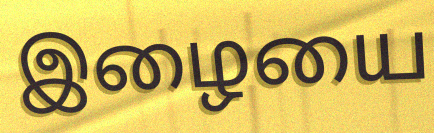
இழையை